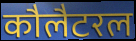
कौलैटरल